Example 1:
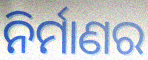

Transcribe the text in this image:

ନିର୍ମାଣର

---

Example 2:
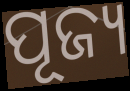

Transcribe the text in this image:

ପୂଜ୍ୟ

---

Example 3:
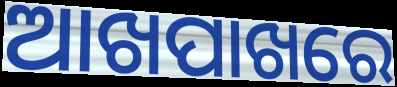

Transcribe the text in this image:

ଆଖପାଖରେ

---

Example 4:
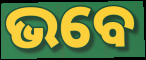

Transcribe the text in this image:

ଭବେ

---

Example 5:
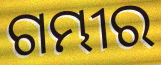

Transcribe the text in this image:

ଗମ୍ଭୀର